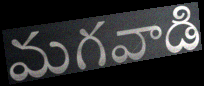
మగవాడి